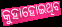
କୁହାହୋଇଥିବ